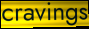
cravings